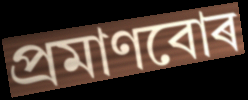
প্ৰমাণবোৰ